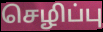
செழிப்பு